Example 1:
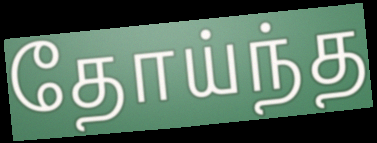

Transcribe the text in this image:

தோய்ந்த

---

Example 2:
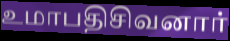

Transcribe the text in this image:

உமாபதிசிவனார்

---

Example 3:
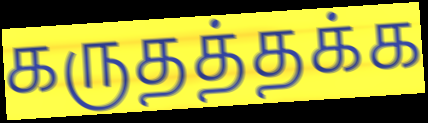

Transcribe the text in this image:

கருதத்தக்க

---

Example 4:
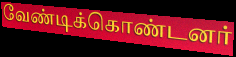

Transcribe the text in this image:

வேண்டிக்கொண்டனர்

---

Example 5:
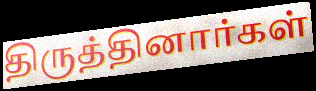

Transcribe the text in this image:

திருத்தினார்கள்